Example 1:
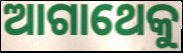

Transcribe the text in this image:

ଆଗାଥେକୁ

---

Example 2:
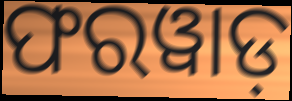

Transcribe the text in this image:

ଫରୱାଡ଼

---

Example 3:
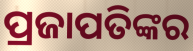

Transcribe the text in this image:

ପ୍ରଜାପତିଙ୍କର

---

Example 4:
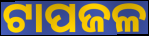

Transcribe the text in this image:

ଟାପଜଳ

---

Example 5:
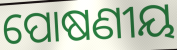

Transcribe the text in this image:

ପୋଷଣୀୟ